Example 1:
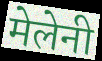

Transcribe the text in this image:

मेलेनी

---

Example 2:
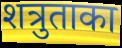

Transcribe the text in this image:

शत्रुताका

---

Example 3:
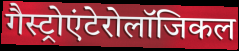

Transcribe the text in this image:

गैस्ट्रोएंटेरोलॉजिकल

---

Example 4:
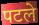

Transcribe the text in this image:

पटले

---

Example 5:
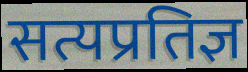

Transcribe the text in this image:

सत्यप्रतिज्ञ